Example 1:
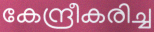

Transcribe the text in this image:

കേന്ദ്രീകരിച്ച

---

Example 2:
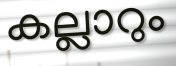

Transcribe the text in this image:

കല്ലാറും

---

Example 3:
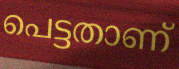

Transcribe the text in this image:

പെട്ടതാണ്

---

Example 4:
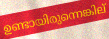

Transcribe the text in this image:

ഉണ്ടായിരുന്നെങ്കില്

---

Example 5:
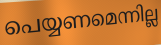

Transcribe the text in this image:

പെയ്യണമെന്നില്ല